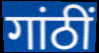
गांठीं